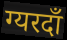
ग्यरदाँ